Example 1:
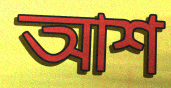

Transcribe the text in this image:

আশ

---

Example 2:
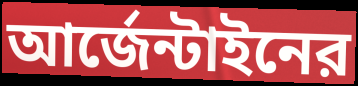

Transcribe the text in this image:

আর্জেন্টাইনের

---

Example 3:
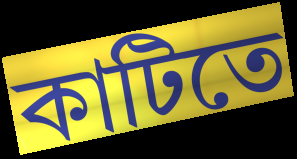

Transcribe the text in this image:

কাটিতে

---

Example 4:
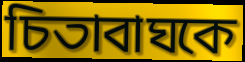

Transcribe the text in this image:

চিতাবাঘকে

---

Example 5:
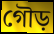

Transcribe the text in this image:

গৌড়